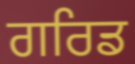
ਗਰਿਡ